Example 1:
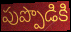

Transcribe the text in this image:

పుప్పొడికి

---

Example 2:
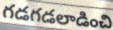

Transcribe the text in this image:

గడగడలాడించి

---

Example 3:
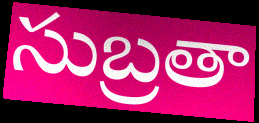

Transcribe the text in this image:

సుబ్రతా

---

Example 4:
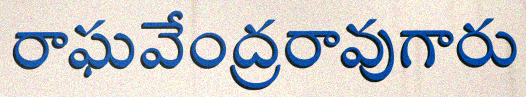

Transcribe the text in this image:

రాఘవేంద్రరావుగారు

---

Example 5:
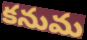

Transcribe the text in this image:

కనుమ